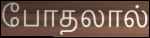
போதலால்